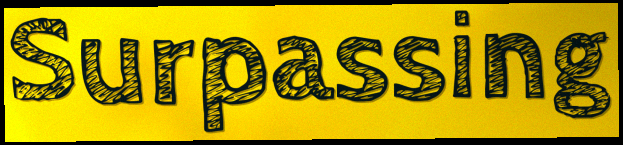
Surpassing